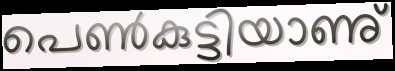
പെൺകുട്ടിയാണു്